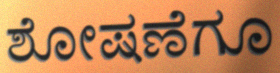
ಶೋಷಣೆಗೂ